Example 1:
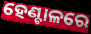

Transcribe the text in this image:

ହେଣ୍ଟାଳରେ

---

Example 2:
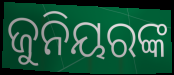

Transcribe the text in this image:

ଜୁନିୟରଙ୍କ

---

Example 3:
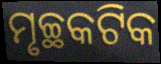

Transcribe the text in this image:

ମୃଚ୍ଛକଟିକ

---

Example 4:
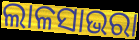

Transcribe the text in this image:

ଲାଳସାଭରା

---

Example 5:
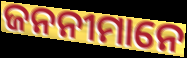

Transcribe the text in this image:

ଜନନୀମାନେ